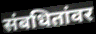
संबधितांवर